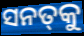
ସନତ୍‍କୁ